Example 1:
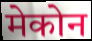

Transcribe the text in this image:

मेकोन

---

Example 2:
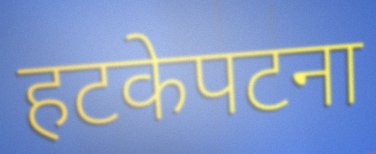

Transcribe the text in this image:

हटकेपटना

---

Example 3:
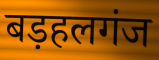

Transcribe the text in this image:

बड़हलगंज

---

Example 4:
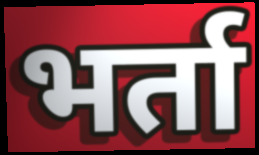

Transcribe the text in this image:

भर्ता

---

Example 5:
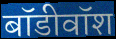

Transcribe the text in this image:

बॉडीवॉश